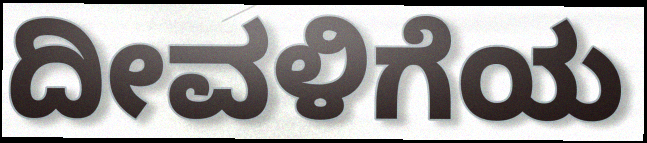
ದೀವಳಿಗೆಯ